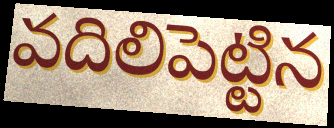
వదిలిపెట్టిన